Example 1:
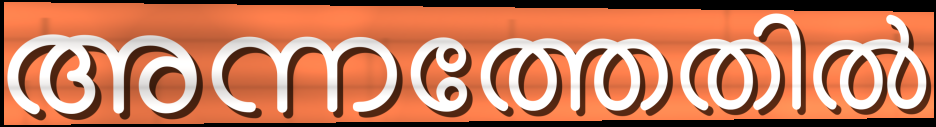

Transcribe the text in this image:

അന്നത്തേതിൽ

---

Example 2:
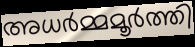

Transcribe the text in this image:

അധർമ്മമൂർത്തി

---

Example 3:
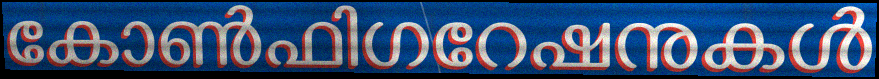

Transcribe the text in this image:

കോൺഫിഗറേഷനുകൾ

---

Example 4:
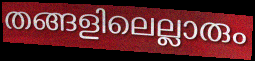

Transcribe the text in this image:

തങ്ങളിലെല്ലാരും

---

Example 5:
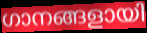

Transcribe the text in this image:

ഗാനങ്ങളായി